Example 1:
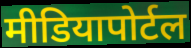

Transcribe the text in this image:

मीडियापोर्टल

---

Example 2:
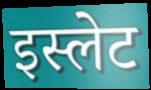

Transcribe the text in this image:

इस्लेट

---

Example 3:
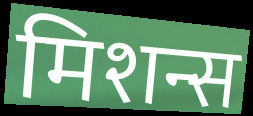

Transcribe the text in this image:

मिशन्स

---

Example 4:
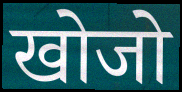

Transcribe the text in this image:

खोजो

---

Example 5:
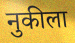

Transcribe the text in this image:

नुकीला